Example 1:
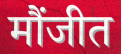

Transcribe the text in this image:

मौंजीत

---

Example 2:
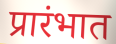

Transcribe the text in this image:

प्रारंभात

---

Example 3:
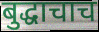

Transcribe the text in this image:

बुद्धाचाच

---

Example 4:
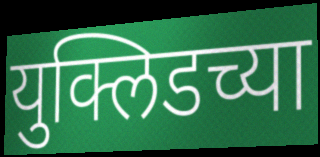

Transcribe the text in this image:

युक्लिडच्या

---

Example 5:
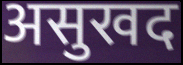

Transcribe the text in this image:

असुखद